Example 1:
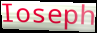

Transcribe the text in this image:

Ioseph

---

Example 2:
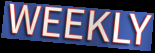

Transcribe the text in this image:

WEEKLY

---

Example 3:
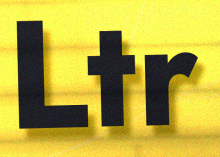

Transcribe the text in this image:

Ltr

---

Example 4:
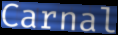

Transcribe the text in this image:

Carnal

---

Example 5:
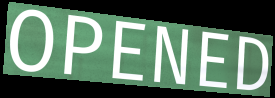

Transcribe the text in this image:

OPENED